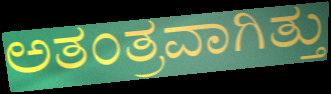
ಅತಂತ್ರವಾಗಿತ್ತು